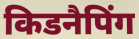
किडनैपिंग